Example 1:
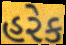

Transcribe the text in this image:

હરેક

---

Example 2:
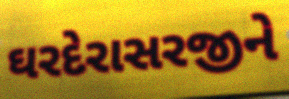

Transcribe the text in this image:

ઘરદેરાસરજીને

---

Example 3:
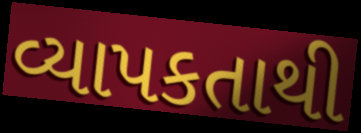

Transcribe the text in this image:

વ્યાપકતાથી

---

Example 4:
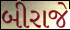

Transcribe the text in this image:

બીરાજે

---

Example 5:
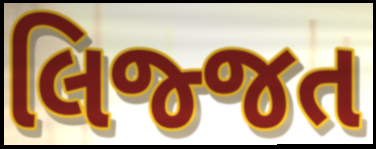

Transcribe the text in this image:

લિજ્જત